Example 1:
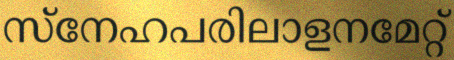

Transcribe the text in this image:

സ്നേഹപരിലാളനമേറ്റ്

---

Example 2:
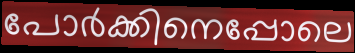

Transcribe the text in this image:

പോർക്കിനെപ്പോലെ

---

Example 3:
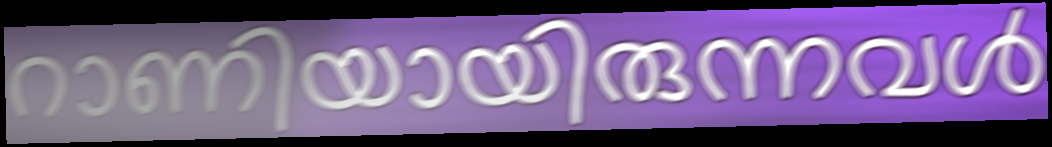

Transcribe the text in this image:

റാണിയായിരുന്നവൾ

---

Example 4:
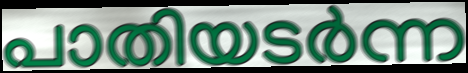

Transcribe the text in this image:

പാതിയടർന്ന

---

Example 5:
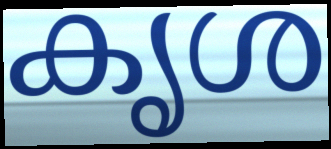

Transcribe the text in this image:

കൃശ